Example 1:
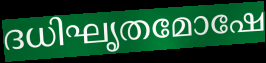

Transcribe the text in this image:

ദധിഘൃതമോഷേ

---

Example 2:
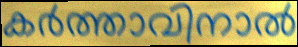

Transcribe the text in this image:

കർത്താവിനാൽ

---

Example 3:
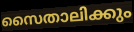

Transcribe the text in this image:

സൈതാലിക്കും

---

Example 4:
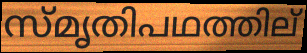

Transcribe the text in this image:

സ്മൃതിപഥത്തില്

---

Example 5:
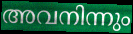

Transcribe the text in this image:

അവനിന്നും